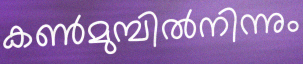
കൺമുമ്പിൽനിന്നും